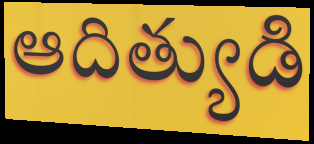
ఆదిత్యుడి